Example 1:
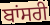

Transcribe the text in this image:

ਬਾਂਸਰੀ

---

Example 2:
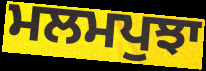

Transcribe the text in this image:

ਮਲਮਪੁਝਾ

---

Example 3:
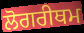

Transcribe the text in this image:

ਲੋਗਰੀਥਮ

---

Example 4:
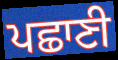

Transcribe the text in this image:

ਪਛਾਣੀ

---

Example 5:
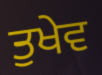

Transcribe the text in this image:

ਤੁਖੇਵ